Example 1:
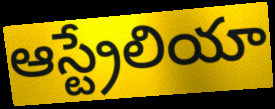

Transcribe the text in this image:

ఆస్ట్రేలియా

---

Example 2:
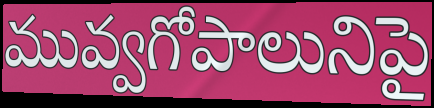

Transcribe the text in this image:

మువ్వగోపాలునిపై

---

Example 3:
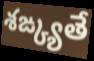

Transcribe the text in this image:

శఙ్క్యతే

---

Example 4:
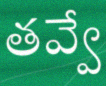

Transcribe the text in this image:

తవ్వే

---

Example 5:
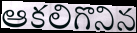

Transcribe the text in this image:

ఆకలిగొనిన